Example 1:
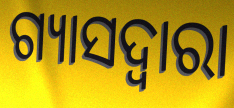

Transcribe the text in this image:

ଗ୍ୟାସଦ୍ଵାରା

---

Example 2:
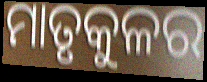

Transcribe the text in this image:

ମାତୃକୁଳର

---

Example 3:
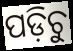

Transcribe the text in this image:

ପଡ଼ିଚୁ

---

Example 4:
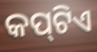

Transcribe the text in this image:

କପ୍‍ଟିଏ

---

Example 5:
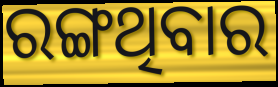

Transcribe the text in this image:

ରଙ୍ଗଥିବାର